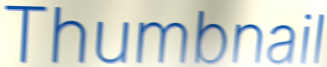
Thumbnail